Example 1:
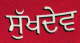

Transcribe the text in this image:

ਸੁੱਖਦੇਵ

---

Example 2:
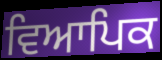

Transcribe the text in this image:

ਵਿਆਪਿਕ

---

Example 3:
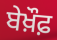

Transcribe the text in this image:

ਬੇਖ਼ੌਫ਼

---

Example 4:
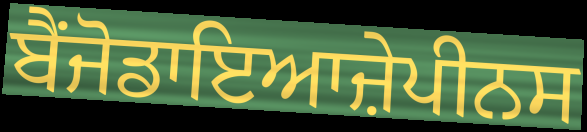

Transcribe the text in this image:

ਬੈਂਜੋਡਾਇਆਜ਼ੇਪੀਨਸ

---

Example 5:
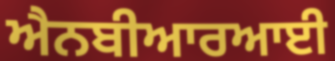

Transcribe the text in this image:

ਐਨਬੀਆਰਆਈ